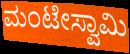
ಮಂಟೇಸ್ವಾಮಿ